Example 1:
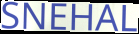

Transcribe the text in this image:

SNEHAL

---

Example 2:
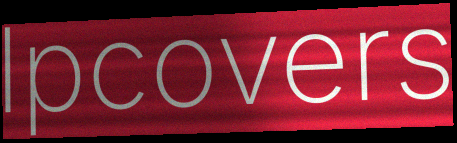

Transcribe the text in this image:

lpcovers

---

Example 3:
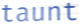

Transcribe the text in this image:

taunt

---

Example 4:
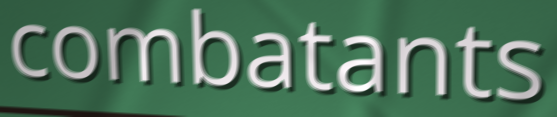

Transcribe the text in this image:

combatants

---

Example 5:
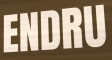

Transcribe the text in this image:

ENDRU